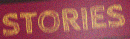
STORIES